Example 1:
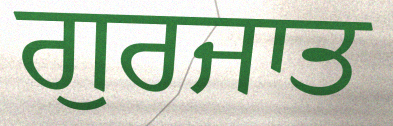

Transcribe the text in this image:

ਗੁਰਜਾਤ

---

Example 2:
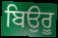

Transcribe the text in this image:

ਬਿਉਰੂ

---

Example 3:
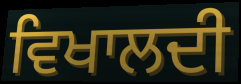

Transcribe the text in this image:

ਵਿਖਾਲਦੀ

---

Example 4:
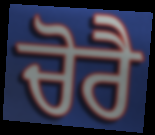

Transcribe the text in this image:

ਚੋਰੈ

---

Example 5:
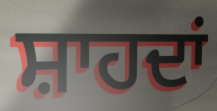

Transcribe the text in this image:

ਸ਼ਾਹਦਾਂ